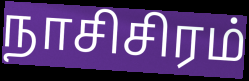
நாசிசிரம்